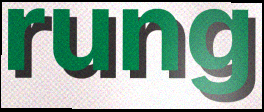
rung